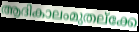
ആദികാലംമുതല്ക്കേ